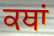
ਕਥਾਂ